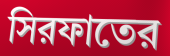
সিরফাতের